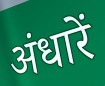
अंधारें